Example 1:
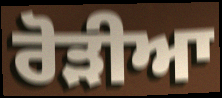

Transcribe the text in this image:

ਰੋੜੀਆ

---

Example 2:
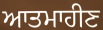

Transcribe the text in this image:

ਆਤਮਾਹੀਣ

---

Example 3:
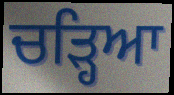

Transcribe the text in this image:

ਚਡ਼੍ਹਿਆ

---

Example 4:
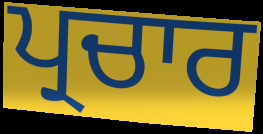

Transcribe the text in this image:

ਪ੍ਰਚਾਰ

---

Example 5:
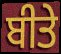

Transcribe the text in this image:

ਬੀਤੇ